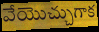
వేయొచ్చుగాక